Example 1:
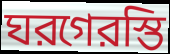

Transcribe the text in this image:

ঘরগেরস্তি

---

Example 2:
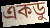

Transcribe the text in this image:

একডু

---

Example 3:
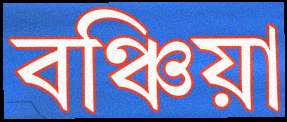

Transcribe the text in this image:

বঞ্চিয়া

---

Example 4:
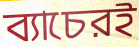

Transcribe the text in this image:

ব্যাচেরই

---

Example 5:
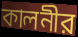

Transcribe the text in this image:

কালনীর